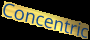
Concentric